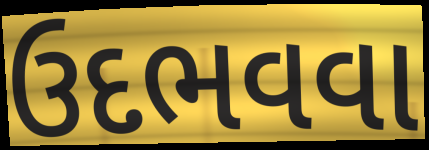
ઉદભવવા